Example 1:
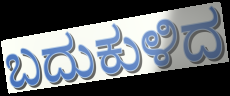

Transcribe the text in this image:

ಬದುಕುಳಿದ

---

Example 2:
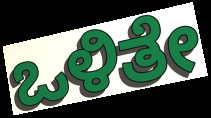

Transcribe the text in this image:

ಒಳಿತೇ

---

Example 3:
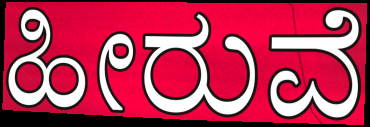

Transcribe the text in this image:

ಹೀರುವೆ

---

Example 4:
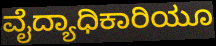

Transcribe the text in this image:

ವೈದ್ಯಾಧಿಕಾರಿಯೂ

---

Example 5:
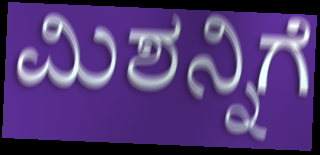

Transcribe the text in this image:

ಮಿಶನ್ನಿಗೆ